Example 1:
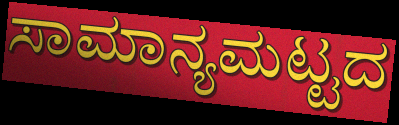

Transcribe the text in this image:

ಸಾಮಾನ್ಯಮಟ್ಟದ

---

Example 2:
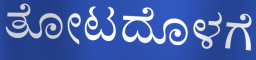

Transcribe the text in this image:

ತೋಟದೊಳಗೆ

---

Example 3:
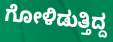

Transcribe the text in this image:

ಗೋಳಿಡುತ್ತಿದ್ದ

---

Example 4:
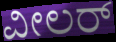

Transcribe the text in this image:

ವೀಲರ್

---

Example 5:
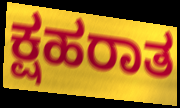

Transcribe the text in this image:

ಕ್ಷಹರಾತ